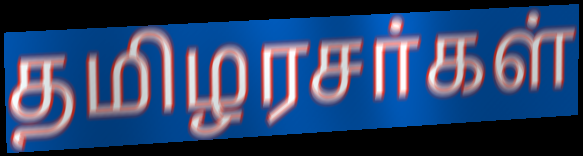
தமிழரசர்கள்